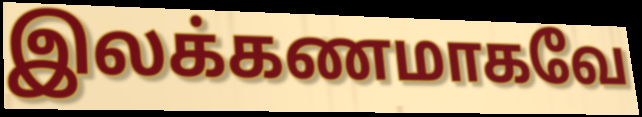
இலக்கணமாகவே